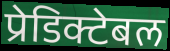
प्रेडिक्टेबल